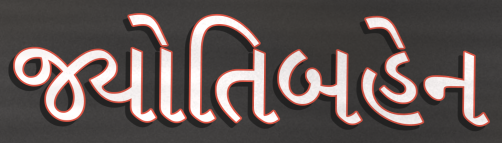
જ્યોતિબહેન